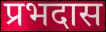
प्रभदास